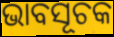
ଭାବସୂଚକ